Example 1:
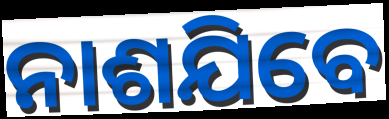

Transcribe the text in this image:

ନାଶଯିବେ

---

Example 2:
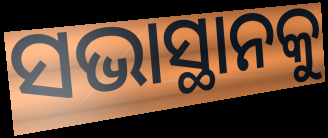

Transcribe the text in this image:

ସଭାସ୍ଥାନକୁ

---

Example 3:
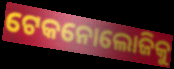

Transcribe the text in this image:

ଟେକନୋଲୋଜିକୁ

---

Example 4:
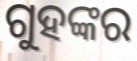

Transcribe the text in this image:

ଗୁହଙ୍କର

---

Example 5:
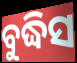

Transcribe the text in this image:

ବୁଦ୍ଧିସ